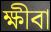
ক্ষীবা